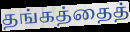
தங்கத்தைத்